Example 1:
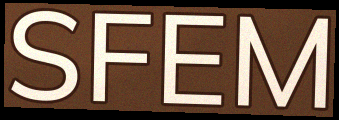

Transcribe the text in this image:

SFEM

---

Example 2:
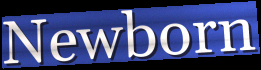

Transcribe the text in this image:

Newborn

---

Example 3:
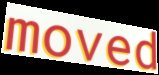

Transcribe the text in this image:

moved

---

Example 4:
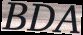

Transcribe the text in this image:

BDA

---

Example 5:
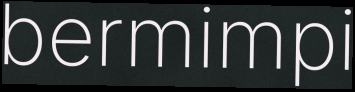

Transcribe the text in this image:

bermimpi